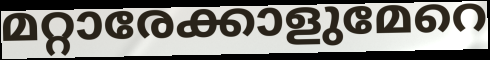
മറ്റാരേക്കാളുമേറെ